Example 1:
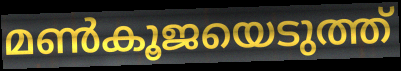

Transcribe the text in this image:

മൺകൂജയെടുത്ത്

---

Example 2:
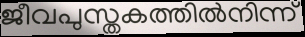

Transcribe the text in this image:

ജീവപുസ്തകത്തിൽനിന്ന്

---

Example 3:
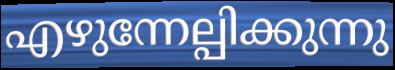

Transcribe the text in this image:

എഴുന്നേല്പിക്കുന്നു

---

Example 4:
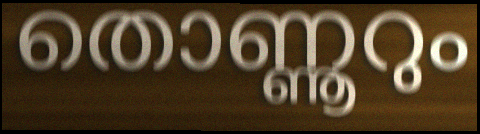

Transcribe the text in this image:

തൊണ്ണൂറും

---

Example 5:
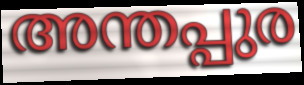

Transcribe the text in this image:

അന്തപ്പുര